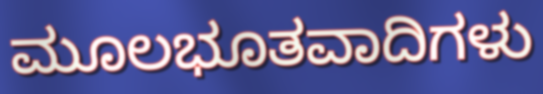
ಮೂಲಭೂತವಾದಿಗಳು